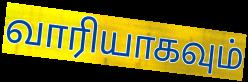
வாரியாகவும்